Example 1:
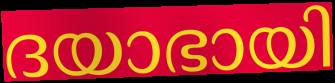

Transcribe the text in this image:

ദയാഭായി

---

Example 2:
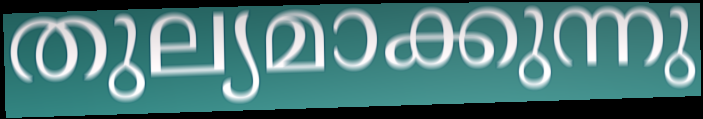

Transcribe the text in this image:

തുല്യമാക്കുന്നു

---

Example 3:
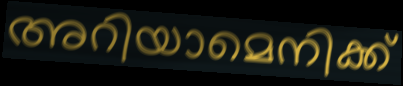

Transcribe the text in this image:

അറിയാമെനിക്ക്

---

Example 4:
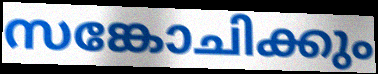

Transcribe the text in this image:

സങ്കോചിക്കും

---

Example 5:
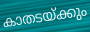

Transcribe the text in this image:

കാതടയ്ക്കും